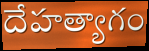
దేహత్యాగం